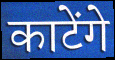
काटेंगे